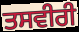
ਤਸਵੀਰੀ